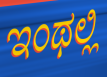
ಇಂಥಲ್ಲಿ